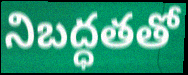
నిబద్ధతతో